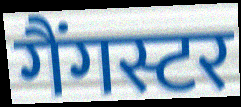
गैंगस्टर